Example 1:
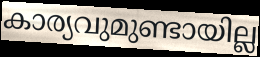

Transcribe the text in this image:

കാര്യവുമുണ്ടായില്ല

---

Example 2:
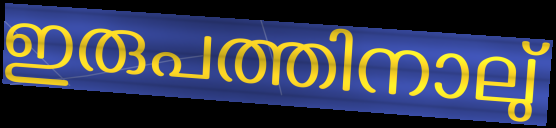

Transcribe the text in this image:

ഇരുപത്തിനാലു്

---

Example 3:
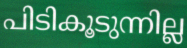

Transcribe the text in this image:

പിടികൂടുന്നില്ല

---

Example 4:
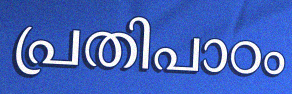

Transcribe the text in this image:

പ്രതിപാഠം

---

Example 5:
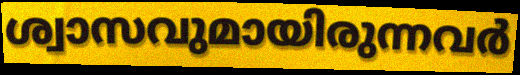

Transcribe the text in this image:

ശ്വാസവുമായിരുന്നവർ